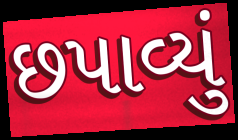
છપાવ્યું